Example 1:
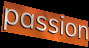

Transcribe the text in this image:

passion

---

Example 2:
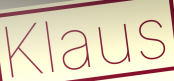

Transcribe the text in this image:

Klaus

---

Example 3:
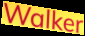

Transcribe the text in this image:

Walker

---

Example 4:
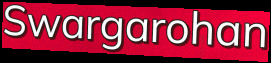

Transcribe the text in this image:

Swargarohan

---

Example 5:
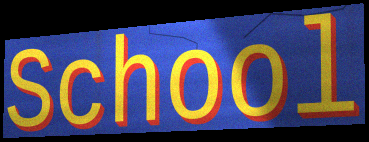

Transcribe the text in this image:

School